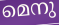
മെനു